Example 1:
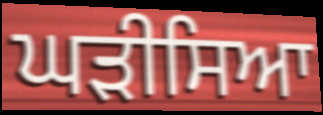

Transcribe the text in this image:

ਘੜੀਸਿਆ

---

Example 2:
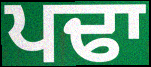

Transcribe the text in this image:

ਪਢਾ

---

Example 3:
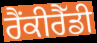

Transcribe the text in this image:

ਰੈਂਕੀਰੈੱਡੀ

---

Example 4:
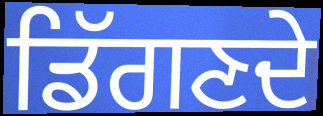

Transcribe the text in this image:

ਡਿੱਗਣਦੇ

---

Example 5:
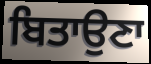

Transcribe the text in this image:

ਬਿਤਾਉਣਾ